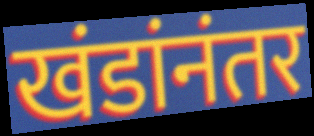
खंडांनंतर